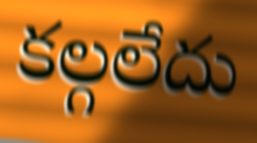
కల్గలేదు